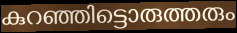
കുറഞ്ഞിട്ടൊരുത്തരും